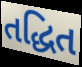
તદ્ધિત